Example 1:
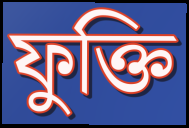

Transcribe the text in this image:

ফুক্তি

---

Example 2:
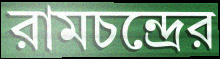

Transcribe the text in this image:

রামচন্দ্রের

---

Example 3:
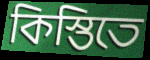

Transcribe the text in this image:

কিস্তিতে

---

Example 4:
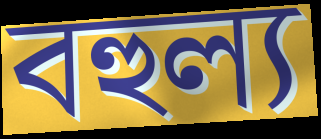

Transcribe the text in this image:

বহুল্য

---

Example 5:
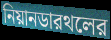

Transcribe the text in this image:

নিয়ানডারথলের